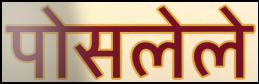
पोसलेले